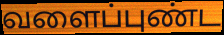
வளைப்புண்ட